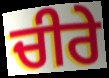
ਚੀਰੇ